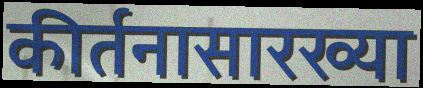
कीर्तनासारख्या